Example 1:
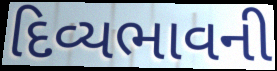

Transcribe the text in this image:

દિવ્યભાવની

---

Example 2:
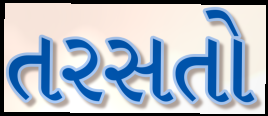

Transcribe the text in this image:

તરસતો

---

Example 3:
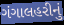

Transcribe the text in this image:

ગંગાલહરીનું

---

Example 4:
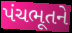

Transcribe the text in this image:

પંચભૂતને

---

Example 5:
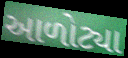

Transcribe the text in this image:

આળોટ્યા